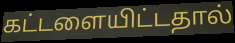
கட்டளையிட்டதால்